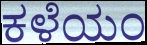
ಕಳೆಯಂ